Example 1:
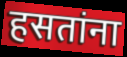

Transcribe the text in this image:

हसतांना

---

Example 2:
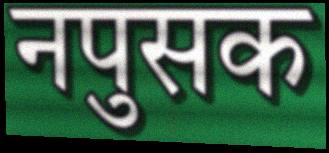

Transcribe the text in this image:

नपुसक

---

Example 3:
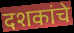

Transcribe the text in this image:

दशकांचे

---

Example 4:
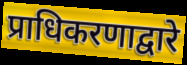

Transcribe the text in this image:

प्राधिकरणाद्वारे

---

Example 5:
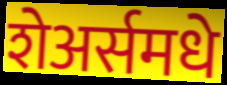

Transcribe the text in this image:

शेअर्समधे